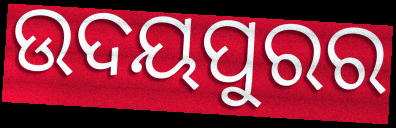
ଉଦୟପୁରର